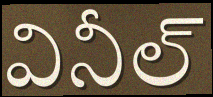
వినీల్